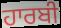
ਹਾਰਬੀ